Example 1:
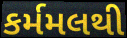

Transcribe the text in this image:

કર્મમલથી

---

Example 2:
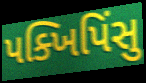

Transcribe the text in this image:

પક્ખિપિંસુ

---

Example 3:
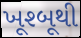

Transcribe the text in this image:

ખૂશ્બૂથી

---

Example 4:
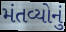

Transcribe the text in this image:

મંતવ્યોનું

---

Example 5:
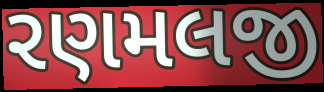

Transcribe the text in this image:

રણમલજી